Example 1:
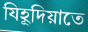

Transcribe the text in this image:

যিহূদিয়াতে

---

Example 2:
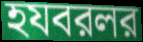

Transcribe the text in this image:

হযবরলর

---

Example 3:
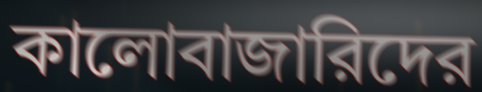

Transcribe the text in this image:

কালোবাজারিদের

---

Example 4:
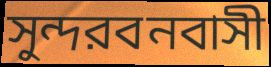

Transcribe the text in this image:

সুন্দরবনবাসী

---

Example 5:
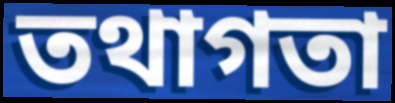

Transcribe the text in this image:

তথাগতা